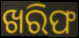
ଖରିଫ